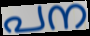
പന